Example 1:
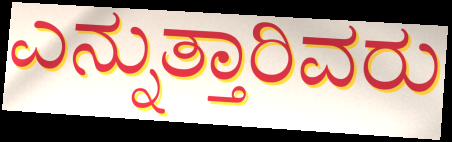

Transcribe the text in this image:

ಎನ್ನುತ್ತಾರಿವರು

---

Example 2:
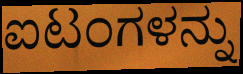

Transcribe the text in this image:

ಐಟಂಗಳನ್ನು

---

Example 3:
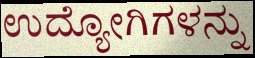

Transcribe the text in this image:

ಉದ್ಯೋಗಿಗಳನ್ನು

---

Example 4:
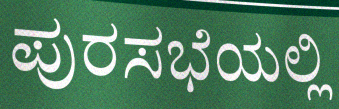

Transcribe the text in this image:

ಪುರಸಭೆಯಲ್ಲಿ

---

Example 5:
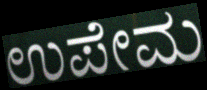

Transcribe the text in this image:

ಉಪೇಮ